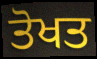
ਤੋਖਤ